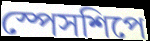
স্পেসশিপে